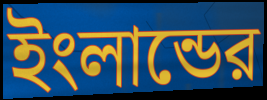
ইংলান্ডের